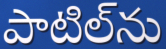
పాటిల్‌ను